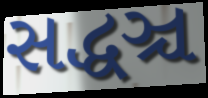
સદ્ધઞ્ચ